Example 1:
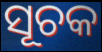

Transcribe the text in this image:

ସୂଚକ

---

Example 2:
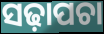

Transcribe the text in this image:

ସଢ଼ାପଚା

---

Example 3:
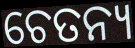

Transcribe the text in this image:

ଚେତନ୍ୟ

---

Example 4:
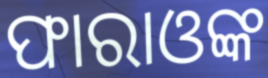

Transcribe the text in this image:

ଫାରାଓଙ୍କ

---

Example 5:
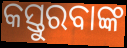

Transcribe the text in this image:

କସ୍ତୁରବାଙ୍କ